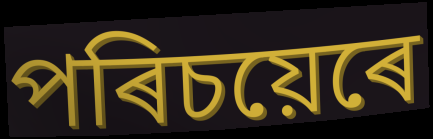
পৰিচয়েৰে